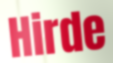
Hirde